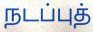
நடப்புத்